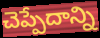
చెప్పేదాన్ని